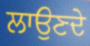
ਲਾਉਣਦੇ